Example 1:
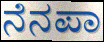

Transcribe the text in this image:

ನೆನಪಾ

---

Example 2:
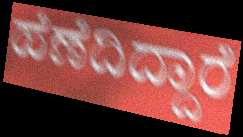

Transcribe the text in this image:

ಹೆಣೆದಿದ್ದಾರೆ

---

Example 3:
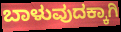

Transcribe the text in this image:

ಬಾಳುವುದಕ್ಕಾಗಿ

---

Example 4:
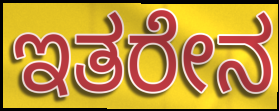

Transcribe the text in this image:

ಇತರೇನ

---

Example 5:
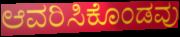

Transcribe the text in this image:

ಆವರಿಸಿಕೊಂಡವು